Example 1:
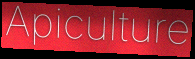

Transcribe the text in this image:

Apiculture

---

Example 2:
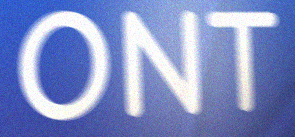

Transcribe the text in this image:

ONT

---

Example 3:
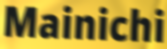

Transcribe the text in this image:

Mainichi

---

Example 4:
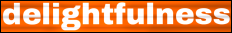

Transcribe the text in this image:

delightfulness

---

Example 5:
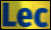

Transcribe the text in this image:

Lec